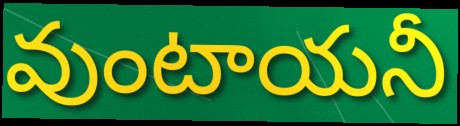
వుంటాయనీ